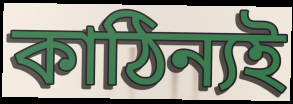
কাঠিন্যই